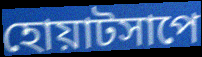
হোয়াটসাপে